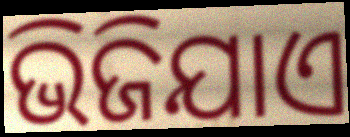
ଭିଜିଯାଏ